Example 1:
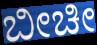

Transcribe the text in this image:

ಬೀಚೀ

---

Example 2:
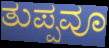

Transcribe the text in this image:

ತುಪ್ಪವೂ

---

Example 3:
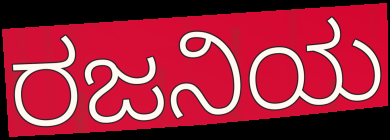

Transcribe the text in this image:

ರಜನಿಯ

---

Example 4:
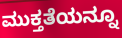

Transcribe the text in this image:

ಮುಕ್ತತೆಯನ್ನೂ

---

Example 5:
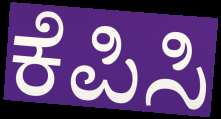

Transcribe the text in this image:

ಕೆಪಿಸಿ